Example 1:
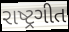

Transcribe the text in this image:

રાષ્ટ્રગીત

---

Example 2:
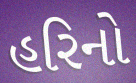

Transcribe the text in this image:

હરિનો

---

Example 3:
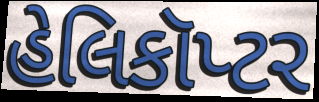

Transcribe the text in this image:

હેલિકૉપ્ટર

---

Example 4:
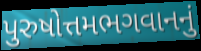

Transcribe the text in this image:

પુરુષોત્તમભગવાનનું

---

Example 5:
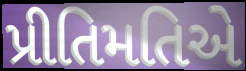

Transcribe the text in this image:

પ્રીતિમતિએ